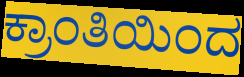
ಕ್ರಾಂತಿಯಿಂದ